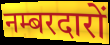
नम्बरदारों